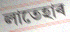
লাতেহাৰ